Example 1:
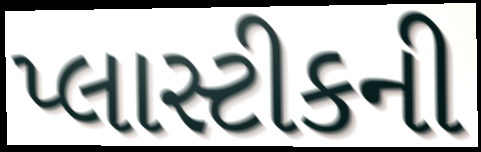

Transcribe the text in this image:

પ્લાસ્ટીકની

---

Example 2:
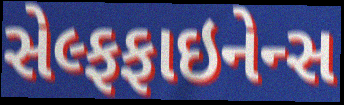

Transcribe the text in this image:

સેલ્ફફાઇનેન્સ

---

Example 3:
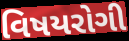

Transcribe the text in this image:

વિષયરોગી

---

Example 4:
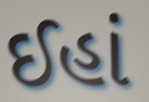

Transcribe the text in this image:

ઈહાં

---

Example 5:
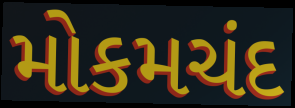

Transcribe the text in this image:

મોકમચંદ